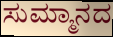
ಸುಮ್ಮಾನದ